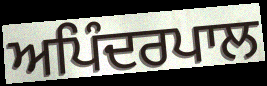
ਅਪਿੰਦਰਪਾਲ